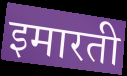
इमारती